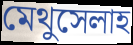
মেথুসেলাহ